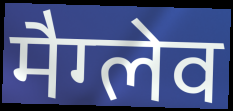
मैग्लेव